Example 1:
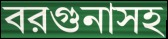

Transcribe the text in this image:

বরগুনাসহ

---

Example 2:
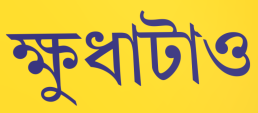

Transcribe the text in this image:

ক্ষুধাটাও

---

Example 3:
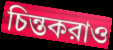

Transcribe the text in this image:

চিন্তকরাও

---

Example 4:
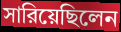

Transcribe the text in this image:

সারিয়েছিলেন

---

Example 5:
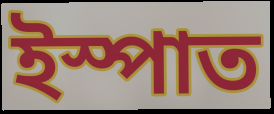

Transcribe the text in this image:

ইস্পাত